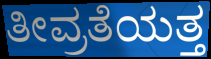
ತೀವ್ರತೆಯತ್ತ